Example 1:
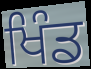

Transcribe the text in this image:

ਖਿੰਡ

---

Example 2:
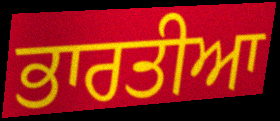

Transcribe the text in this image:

ਭਾਰਤੀਆ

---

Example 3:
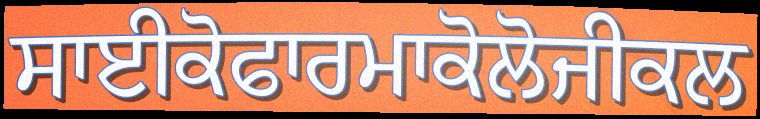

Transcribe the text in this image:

ਸਾਈਕੋਫਾਰਮਾਕੋਲੋਜੀਕਲ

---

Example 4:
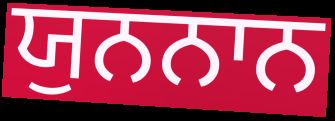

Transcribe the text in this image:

ਯੁਨਨਾਨ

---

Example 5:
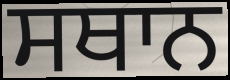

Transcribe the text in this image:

ਸਥਾਨ